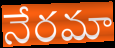
నేరమా